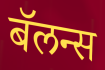
बॅलन्स